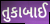
તુકાબાઈ